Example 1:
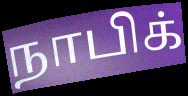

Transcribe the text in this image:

நாபிக்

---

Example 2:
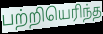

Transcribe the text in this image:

பற்றியெரிந்த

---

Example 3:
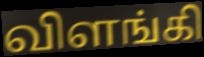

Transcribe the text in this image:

விளங்கி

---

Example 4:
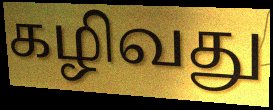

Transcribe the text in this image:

கழிவது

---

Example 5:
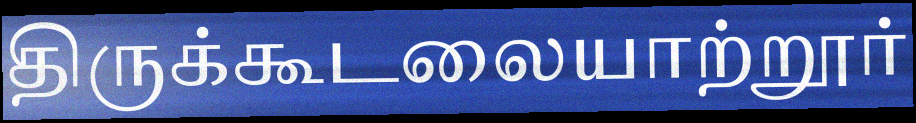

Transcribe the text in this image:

திருக்கூடலையாற்றூர்